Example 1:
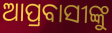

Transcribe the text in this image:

ଆପ୍ରବାସୀଙ୍କୁ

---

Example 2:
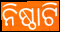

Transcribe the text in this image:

ନିଷ୍ଠାଟି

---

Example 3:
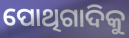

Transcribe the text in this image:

ପୋଥିଗାଦିକୁ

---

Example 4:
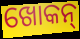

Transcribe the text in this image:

ଖୋକନ୍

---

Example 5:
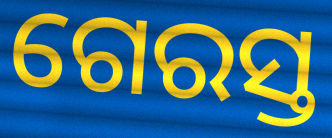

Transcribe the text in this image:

ଗେରସ୍ତ